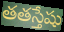
తతస్తేషు